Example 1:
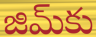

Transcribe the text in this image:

జిమ్‌కు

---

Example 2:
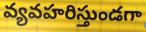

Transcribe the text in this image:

వ్యవహరిస్తుండగా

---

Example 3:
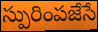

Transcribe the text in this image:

స్పురింపజేసే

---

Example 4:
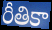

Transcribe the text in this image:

రీతికా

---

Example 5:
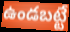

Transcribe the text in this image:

ఉండబట్టే